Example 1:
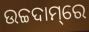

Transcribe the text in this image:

ଉଚ୍ଚଦାମ୍‌ରେ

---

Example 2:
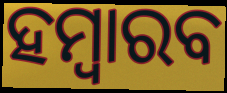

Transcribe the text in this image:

ହମ୍ବାରବ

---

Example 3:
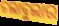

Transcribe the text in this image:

ଚଲାବୁଲାର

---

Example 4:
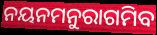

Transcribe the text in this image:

ନୟନମନୁରାଗମିବ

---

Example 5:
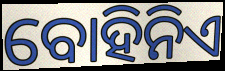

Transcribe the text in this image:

ବୋହିନିଏ